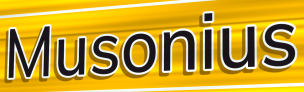
Musonius